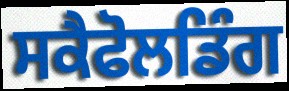
ਸਕੈਫੋਲਡਿੰਗ